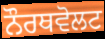
ਨੌਰਥਵੋਲਟ